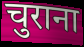
चुराना